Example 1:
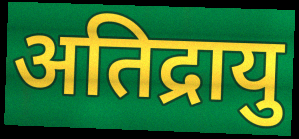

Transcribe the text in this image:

अतिद्रायु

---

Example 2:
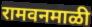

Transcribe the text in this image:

रामवनमाळी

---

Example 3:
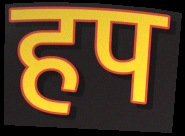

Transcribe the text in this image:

हप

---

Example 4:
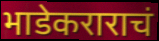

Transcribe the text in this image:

भाडेकराराचं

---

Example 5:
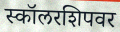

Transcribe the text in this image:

स्कॉलरशिपवर